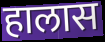
हालास